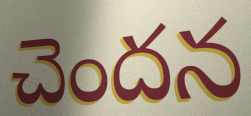
చెందన